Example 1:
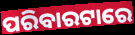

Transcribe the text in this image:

ପରିବାରଟାରେ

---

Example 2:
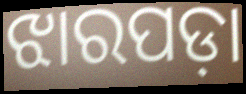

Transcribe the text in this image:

ଝାରପଡ଼ା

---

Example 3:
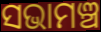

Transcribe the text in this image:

ସଭାମଞ୍ଚ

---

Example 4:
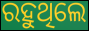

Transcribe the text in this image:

ରହୁଥିଲେ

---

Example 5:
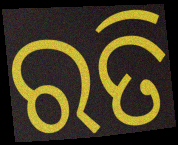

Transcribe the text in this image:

ରତି